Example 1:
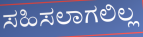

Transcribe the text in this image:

ಸಹಿಸಲಾಗಲಿಲ್ಲ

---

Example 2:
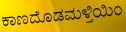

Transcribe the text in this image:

ಕಾಣದೊಡಮಳ್ತಿಯಿಂ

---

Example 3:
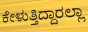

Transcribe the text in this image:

ಕೇಳುತ್ತಿದ್ದಾರಲ್ಲಾ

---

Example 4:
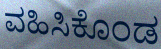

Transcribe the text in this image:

ವಹಿಸಿಕೊಂಡ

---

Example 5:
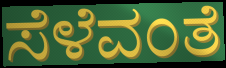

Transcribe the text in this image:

ಸೆಳೆವಂತೆ